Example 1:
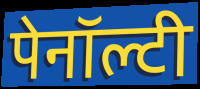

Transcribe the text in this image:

पेनॉल्टी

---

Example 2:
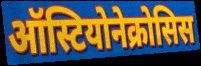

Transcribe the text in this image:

ऑस्टियोनेक्रोसिस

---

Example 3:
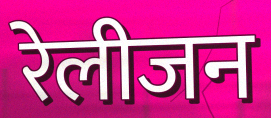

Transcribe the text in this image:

रेलीजन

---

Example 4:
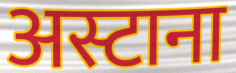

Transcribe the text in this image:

अस्टाना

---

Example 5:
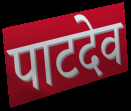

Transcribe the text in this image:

पाटदेव